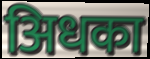
अिधका